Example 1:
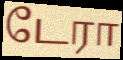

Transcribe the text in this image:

டேரா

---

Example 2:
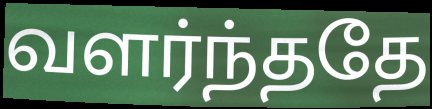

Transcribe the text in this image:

வளர்ந்ததே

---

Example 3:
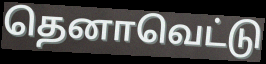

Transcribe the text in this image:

தெனாவெட்டு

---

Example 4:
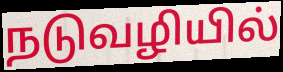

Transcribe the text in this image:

நடுவழியில்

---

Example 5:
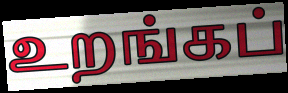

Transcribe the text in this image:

உறங்கப்